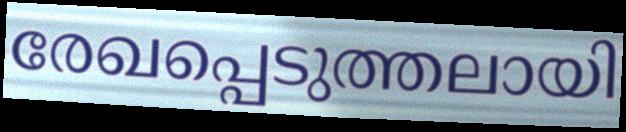
രേഖപ്പെടുത്തലായി